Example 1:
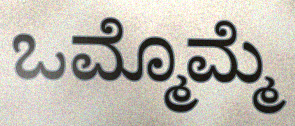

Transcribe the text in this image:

ಒಮ್ಮೊಮ್ಮೆ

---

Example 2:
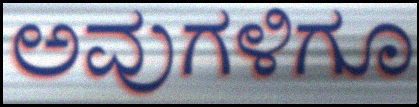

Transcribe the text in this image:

ಅವುಗಳಿಗೂ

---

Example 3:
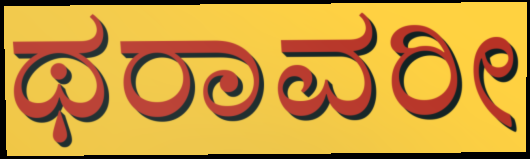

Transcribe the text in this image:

ಥರಾವರೀ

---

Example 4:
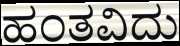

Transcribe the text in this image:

ಹಂತವಿದು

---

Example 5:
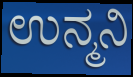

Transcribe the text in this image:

ಉನ್ಮನಿ